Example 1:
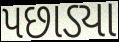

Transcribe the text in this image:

પછાડ્યા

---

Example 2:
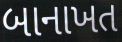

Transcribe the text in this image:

બાનાખત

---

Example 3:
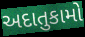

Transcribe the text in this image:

અદાતુકામો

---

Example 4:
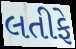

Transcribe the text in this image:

લતીફે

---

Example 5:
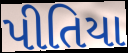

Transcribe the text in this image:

પીતિયા